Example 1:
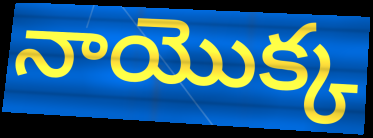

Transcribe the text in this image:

నాయొక్క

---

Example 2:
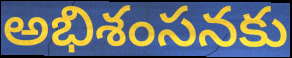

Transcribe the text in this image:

అభిశంసనకు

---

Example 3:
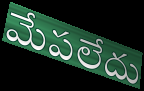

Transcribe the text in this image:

మేపలేదు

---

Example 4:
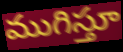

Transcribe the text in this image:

ముగిస్తూ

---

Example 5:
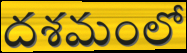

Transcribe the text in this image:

దశమంలో